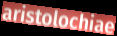
aristolochiae